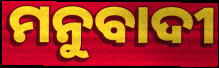
ମନୁବାଦୀ